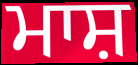
ਮਾਸ਼